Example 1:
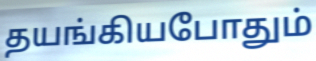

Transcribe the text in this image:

தயங்கியபோதும்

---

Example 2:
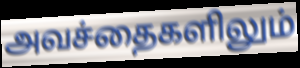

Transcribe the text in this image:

அவச்தைகளிலும்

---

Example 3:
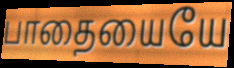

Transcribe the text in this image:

பாதையையே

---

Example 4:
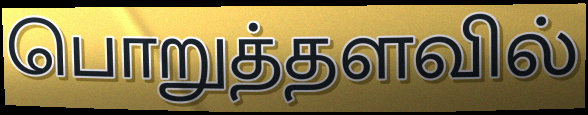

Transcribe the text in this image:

பொறுத்தளவில்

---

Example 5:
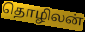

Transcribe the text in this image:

தொழிலன்